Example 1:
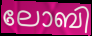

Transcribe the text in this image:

ലോബി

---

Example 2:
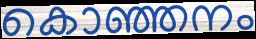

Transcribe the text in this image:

കൊഞ്ഞനം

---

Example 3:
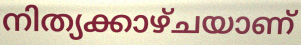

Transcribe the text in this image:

നിത്യക്കാഴ്ചയാണ്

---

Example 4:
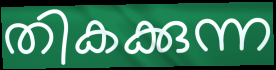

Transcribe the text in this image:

തികക്കുന്ന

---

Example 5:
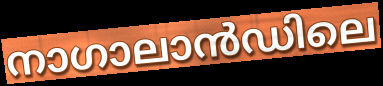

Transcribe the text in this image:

നാഗാലാൻഡിലെ